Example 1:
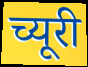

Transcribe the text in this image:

च्यूरी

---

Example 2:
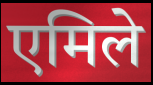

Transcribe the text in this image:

एमिले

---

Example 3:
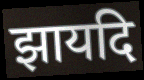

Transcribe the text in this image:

झायदि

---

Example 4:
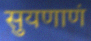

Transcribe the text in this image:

सुयणाणं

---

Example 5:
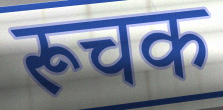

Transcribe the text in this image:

रूचक